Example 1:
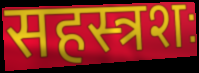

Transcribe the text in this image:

सहस्त्रशः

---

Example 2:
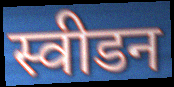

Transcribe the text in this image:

स्वीडन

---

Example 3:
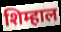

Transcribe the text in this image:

शिम्हाल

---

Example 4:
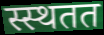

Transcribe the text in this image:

स्स्थतत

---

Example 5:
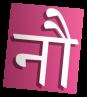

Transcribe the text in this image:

नौ